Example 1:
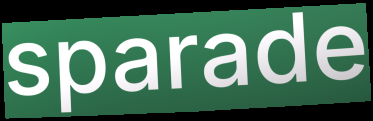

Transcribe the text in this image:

sparade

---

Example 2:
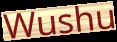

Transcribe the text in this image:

Wushu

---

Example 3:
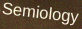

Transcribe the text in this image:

Semiology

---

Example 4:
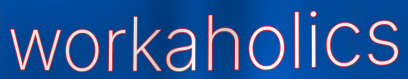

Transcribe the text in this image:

workaholics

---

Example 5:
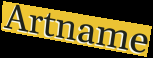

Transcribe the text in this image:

Artname